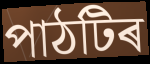
পাঠটিৰ